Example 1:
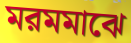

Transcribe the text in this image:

মরমমাঝে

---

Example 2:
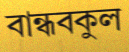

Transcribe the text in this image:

বান্ধবকুল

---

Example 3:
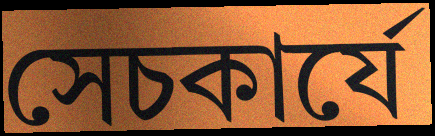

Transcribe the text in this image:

সেচকার্যে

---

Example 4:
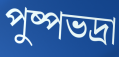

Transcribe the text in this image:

পুষ্পভদ্রা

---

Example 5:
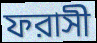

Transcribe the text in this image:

ফরাসী